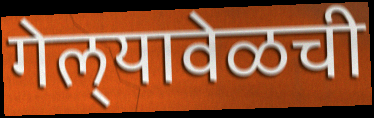
गेल्यावेळची